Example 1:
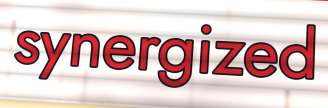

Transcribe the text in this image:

synergized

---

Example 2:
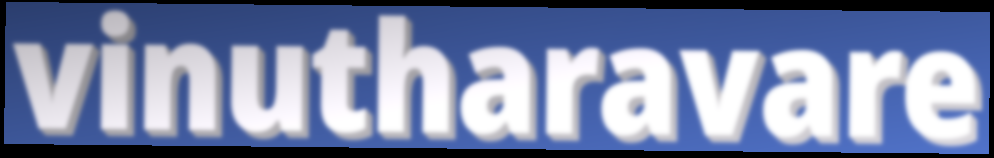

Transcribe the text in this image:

vinutharavare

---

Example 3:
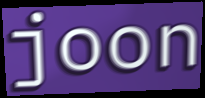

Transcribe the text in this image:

joon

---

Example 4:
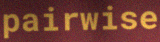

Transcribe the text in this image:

pairwise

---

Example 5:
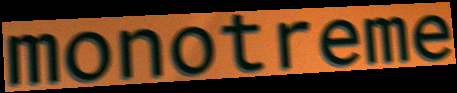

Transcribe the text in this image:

monotreme